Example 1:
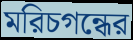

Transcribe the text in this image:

মরিচগন্ধের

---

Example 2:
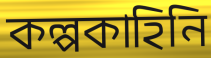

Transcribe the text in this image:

কল্পকাহিনি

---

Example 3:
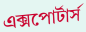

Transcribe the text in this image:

এক্সপোর্টার্স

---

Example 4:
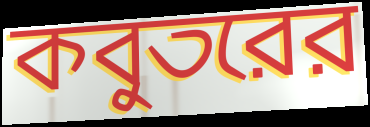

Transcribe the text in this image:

কবুতরের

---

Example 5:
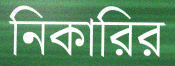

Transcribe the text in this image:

নিকারির